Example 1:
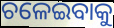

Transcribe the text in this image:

ଚଳେଇବାକୁ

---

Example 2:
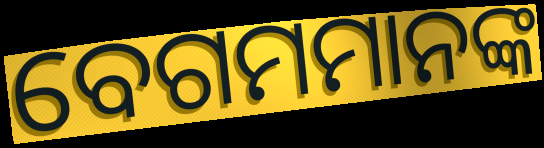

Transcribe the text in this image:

ବେଗମମାନଙ୍କ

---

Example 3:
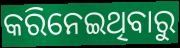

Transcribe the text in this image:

କରିନେଇଥିବାରୁ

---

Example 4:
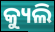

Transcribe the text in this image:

କ୍ୟୁଲି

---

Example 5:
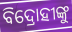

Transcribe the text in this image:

ବିଦ୍ରୋହୀଙ୍କୁ